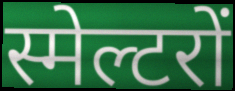
स्मेल्टरों